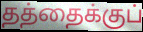
தத்தைக்குப்